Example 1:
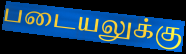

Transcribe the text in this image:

படையலுக்கு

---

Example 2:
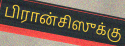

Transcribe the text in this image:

பிரான்சிஸுக்கு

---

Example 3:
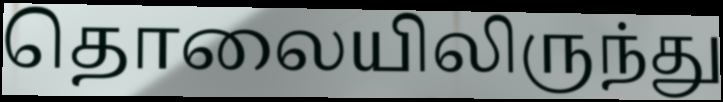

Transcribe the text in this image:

தொலையிலிருந்து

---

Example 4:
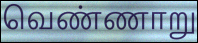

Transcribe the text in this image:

வெண்ணாறு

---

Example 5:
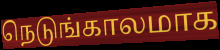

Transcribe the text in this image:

நெடுங்காலமாக